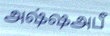
அஷ்ஷஅபீ